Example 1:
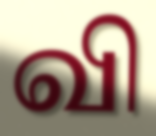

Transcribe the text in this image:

வி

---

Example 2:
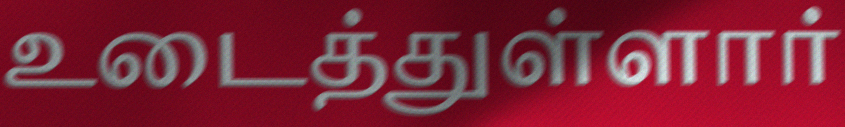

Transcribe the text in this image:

உடைத்துள்ளார்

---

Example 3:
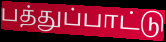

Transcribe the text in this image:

பத்துப்பாட்டு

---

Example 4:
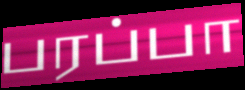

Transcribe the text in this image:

பரப்பா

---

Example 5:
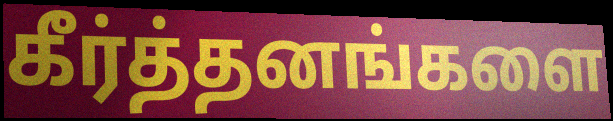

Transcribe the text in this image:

கீர்த்தனங்களை